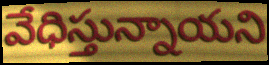
వేధిస్తున్నాయని